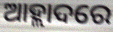
ଆହ୍ଲାଦରେ